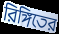
রিঙ্গিতের